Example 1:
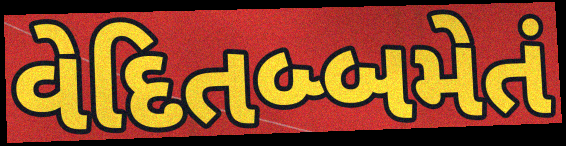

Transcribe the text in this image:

વેદિતબ્બમેતં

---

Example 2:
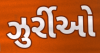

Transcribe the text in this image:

ઝુર્રીઓ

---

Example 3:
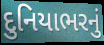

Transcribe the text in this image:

દુનિયાભરનું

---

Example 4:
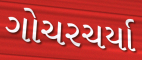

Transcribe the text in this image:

ગોચરચર્યા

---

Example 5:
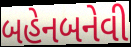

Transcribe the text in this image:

બહેનબનેવી